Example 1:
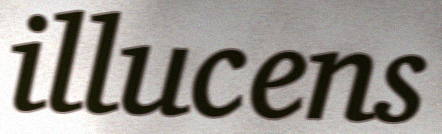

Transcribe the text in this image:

illucens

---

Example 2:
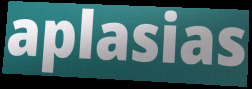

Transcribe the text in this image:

aplasias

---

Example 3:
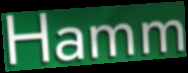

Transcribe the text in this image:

Hamm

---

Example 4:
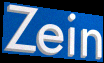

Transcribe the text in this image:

Zein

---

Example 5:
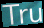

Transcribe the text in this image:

Tru